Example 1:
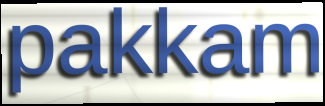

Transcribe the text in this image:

pakkam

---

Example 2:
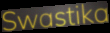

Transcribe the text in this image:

Swastika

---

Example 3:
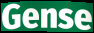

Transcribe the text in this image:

Gense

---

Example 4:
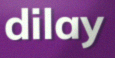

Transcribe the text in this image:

dilay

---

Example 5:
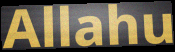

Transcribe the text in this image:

Allahu